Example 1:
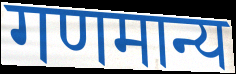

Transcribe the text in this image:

गणमान्य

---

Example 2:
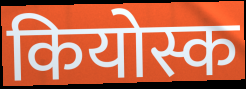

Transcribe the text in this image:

कियोस्क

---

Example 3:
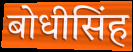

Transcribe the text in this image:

बोधीसिंह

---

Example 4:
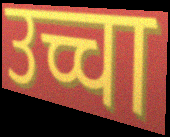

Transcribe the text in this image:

उच्चा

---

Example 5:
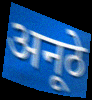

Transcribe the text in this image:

अनूठे